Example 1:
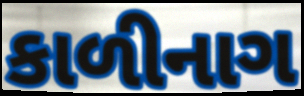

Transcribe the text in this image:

કાળીનાગ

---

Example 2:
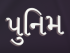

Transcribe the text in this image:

પુનિમ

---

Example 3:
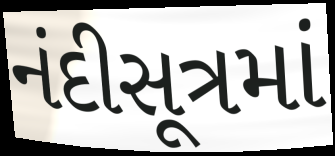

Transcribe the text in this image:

નંદીસૂત્રમાં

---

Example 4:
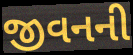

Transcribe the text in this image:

જીવનની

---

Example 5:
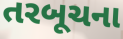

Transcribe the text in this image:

તરબૂચના